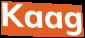
Kaag